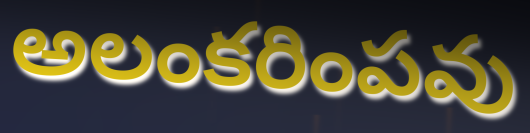
అలంకరింపవు